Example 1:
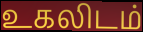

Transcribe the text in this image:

உகலிடம்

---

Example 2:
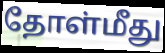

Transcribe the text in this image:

தோள்மீது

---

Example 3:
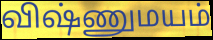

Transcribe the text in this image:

விஷ்ணுமயம்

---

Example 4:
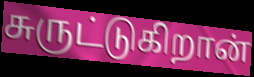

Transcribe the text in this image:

சுருட்டுகிறான்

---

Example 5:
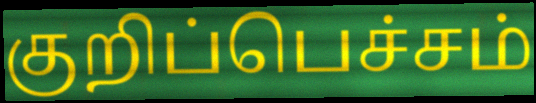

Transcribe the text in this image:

குறிப்பெச்சம்